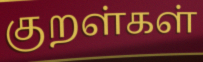
குறள்கள்